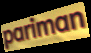
pariman